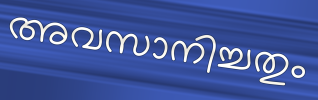
അവസാനിച്ചതും